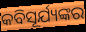
କବିସୂର୍ଯ୍ୟଙ୍କର